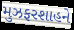
મુઝફરશાહને